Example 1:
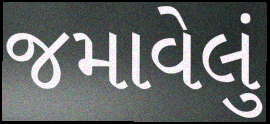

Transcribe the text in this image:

જમાવેલું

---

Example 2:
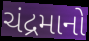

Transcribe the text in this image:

ચંદ્રમાનો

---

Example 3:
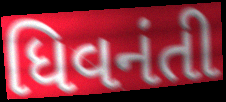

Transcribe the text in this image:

ધિવનંતી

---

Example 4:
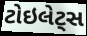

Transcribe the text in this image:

ટોઇલેટ્સ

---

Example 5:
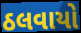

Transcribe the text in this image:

ઠલવાયો